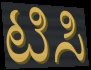
ಟಿಸಿ